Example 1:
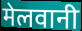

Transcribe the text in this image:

मेलवानी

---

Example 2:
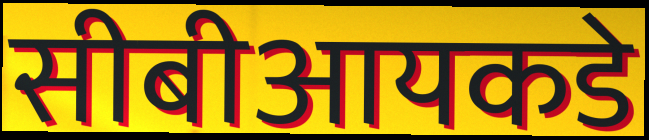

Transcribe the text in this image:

सीबीआयकडे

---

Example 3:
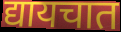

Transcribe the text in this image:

द्यायचात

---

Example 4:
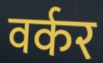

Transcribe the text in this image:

वर्कर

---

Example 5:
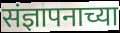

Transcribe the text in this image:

संज्ञापनाच्या